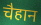
चैहान